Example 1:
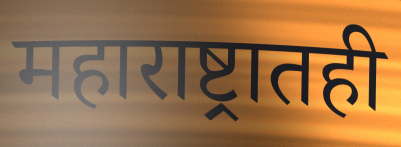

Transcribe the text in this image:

महाराष्ट्रातही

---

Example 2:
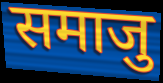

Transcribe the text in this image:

समाजु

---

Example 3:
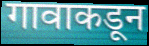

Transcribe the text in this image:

गावाकडून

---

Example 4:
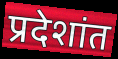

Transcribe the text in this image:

प्रदेशांत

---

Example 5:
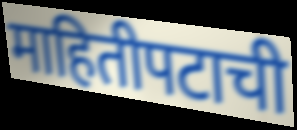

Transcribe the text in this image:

माहितीपटाची